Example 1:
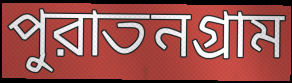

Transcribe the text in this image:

পুরাতনগ্রাম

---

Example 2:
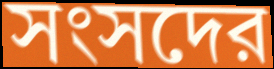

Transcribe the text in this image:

সংসদের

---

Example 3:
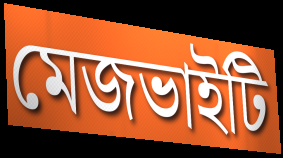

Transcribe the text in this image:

মেজভাইটি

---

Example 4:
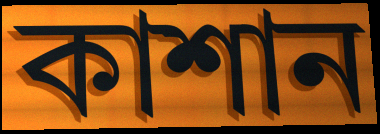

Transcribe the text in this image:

কাশান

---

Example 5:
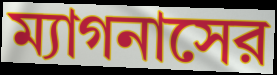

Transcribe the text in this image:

ম্যাগনাসের